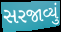
સરજાવ્યું